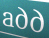
add